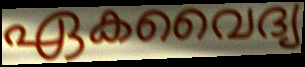
ഏകവൈദ്യ